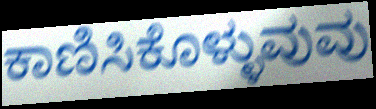
ಕಾಣಿಸಿಕೊಳ್ಳುವುವು